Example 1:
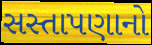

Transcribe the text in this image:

સસ્તાપણાનો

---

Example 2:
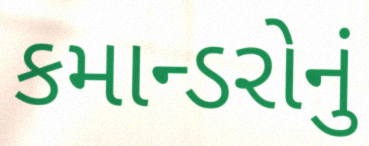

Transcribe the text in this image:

કમાન્ડરોનું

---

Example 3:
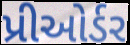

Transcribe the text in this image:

પ્રીઓર્ડર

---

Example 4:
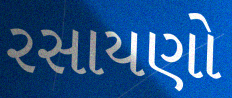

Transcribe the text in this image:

રસાયણો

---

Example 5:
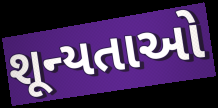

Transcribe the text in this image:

શૂન્યતાઓ